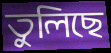
তুলিছে